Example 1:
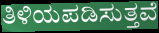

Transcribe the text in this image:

ತಿಳಿಯಪಡಿಸುತ್ತವೆ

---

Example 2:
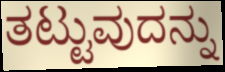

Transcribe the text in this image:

ತಟ್ಟುವುದನ್ನು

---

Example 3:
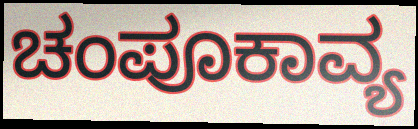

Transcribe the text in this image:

ಚಂಪೂಕಾವ್ಯ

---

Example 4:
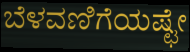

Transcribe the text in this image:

ಬೆಳವಣಿಗೆಯಷ್ಟೇ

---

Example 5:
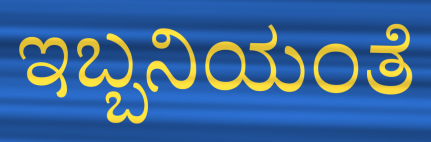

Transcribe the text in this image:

ಇಬ್ಬನಿಯಂತೆ